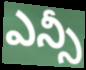
ఎన్సీ